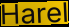
Harel